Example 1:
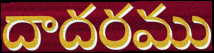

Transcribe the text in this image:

దాదరము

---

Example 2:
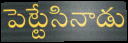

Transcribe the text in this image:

పెట్టేసినాడు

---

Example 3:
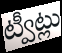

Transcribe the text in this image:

ట్వీట్లు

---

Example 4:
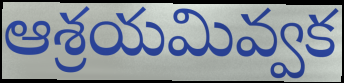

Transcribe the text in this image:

ఆశ్రయమివ్వక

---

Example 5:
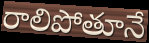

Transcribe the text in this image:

రాలిపోతూనే